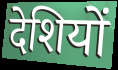
देशियों